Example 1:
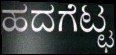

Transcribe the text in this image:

ಹದಗೆಟ್ಟ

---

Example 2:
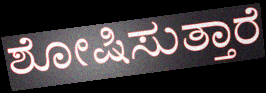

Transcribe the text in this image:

ಶೋಷಿಸುತ್ತಾರೆ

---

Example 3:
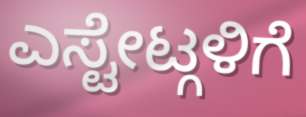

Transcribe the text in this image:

ಎಸ್ಟೇಟ್ಗಳಿಗೆ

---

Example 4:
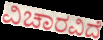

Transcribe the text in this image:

ವಿಚಾರವಿದೆ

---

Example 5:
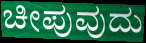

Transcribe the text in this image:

ಚೀಪುವುದು